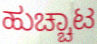
ಹುಚ್ಚಾಟ